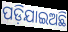
ପଡ଼ିଯାଇଅଛି